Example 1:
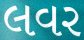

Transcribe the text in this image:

લવર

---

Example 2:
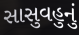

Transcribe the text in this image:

સાસુવહુનું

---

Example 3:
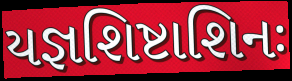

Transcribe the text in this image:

યજ્ઞશિષ્ટાશિનઃ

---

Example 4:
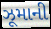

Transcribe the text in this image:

ઝૂમાની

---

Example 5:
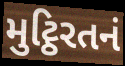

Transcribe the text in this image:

મુટ્ઠિરતનં